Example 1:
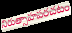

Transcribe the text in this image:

నిరుత్సాహపరచటం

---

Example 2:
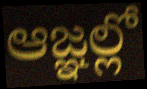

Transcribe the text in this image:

ఆజ్ఞల్లో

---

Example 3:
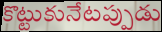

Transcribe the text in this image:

కొట్టుకునేటప్పుడు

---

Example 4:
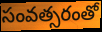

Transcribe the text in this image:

సంవత్సరంతో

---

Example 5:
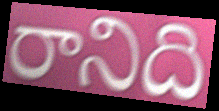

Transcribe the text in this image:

రానిది